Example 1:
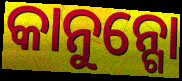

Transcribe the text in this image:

କାନୁନ୍ଗୋ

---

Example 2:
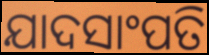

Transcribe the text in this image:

ଯାଦସାଂପତି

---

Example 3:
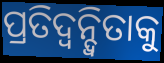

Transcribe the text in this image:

ପ୍ରତିଦ୍ୱନ୍ଦ୍ୱିତାକୁ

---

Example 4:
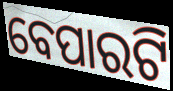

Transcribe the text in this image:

ବେପାରଟି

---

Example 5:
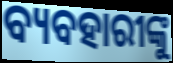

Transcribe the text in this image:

ବ୍ୟବହାରୀଙ୍କୁ